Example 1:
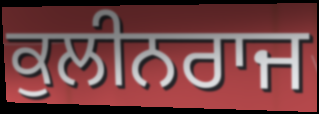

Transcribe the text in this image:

ਕੁਲੀਨਰਾਜ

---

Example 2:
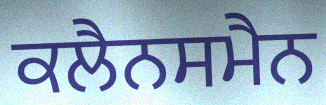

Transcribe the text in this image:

ਕਲੈਨਸਮੈਨ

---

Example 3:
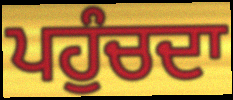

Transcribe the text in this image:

ਪਹੁੰਚਦਾ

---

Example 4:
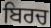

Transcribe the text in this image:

ਬਿਰਚ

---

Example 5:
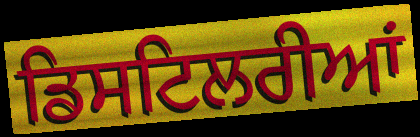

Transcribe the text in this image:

ਡਿਸਟਿਲਰੀਆਂ